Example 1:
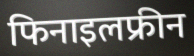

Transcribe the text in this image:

फिनाइलफ्रीन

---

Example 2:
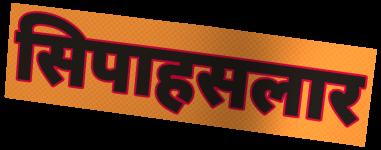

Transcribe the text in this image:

सिपाहसलार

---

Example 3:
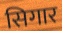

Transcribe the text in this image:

सिगार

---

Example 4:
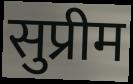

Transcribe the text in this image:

सुप्रीम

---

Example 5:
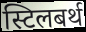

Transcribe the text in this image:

स्टिलबर्थ